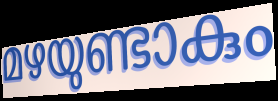
മഴയുണ്ടാകും